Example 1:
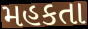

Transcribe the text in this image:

મહકતા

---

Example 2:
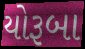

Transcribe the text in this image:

યોરૂબા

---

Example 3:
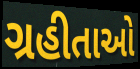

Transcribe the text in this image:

ગ્રહીતાઓ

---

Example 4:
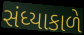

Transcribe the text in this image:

સંધ્યાકાળે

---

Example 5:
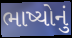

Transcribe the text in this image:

ભાષ્યોનું